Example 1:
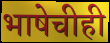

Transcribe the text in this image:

भाषेचीही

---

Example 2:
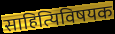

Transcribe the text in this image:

साहित्यिविषयक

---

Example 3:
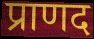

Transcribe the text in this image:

प्राणद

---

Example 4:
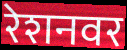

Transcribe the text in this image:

रेशनवर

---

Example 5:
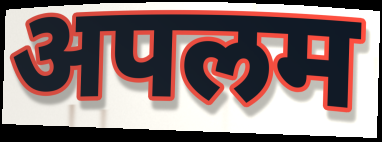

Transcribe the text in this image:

अपलम